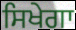
ਸਿਖੇਗਾ